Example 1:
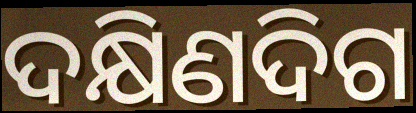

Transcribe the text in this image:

ଦକ୍ଷିଣଦିଗ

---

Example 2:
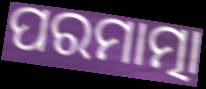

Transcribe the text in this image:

ପରମାତ୍ମା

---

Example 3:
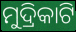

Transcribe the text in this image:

ମୁଦ୍ରିକାଟି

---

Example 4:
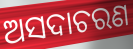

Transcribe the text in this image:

ଅସଦାଚରଣ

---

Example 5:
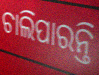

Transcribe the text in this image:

ଚାଲିପାରନ୍ତି